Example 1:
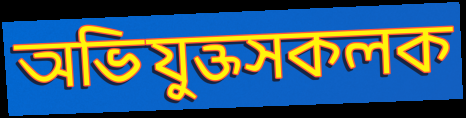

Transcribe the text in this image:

অভিযুক্তসকলক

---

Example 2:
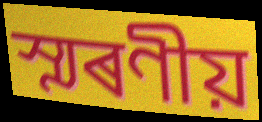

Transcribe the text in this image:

স্মৰণীয়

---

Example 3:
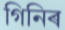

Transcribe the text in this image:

গিনিৰ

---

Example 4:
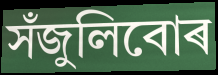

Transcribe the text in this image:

সঁজুলিবোৰ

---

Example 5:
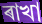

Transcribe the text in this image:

ৰাখা